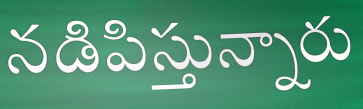
నడిపిస్తున్నారు